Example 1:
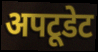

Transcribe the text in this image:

अपटूडेट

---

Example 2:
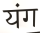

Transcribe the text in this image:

यंग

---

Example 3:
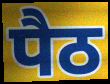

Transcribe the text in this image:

पैठ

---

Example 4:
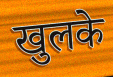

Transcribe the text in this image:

खुलके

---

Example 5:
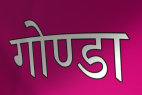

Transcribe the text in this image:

गोण्डा